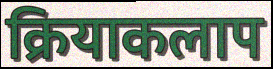
क्रियाकलाप